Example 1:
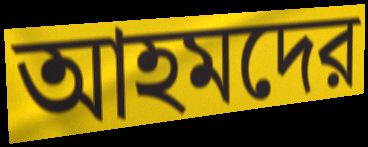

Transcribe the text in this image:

আহমদের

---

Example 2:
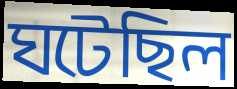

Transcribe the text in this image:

ঘটেছিল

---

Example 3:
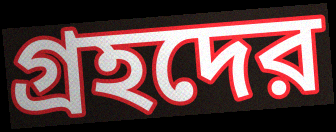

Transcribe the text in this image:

গ্রহদের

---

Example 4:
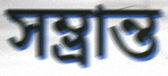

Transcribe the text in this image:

সম্ভ্রান্ত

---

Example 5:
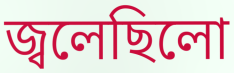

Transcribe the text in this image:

জ্বলেছিলো